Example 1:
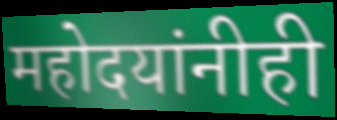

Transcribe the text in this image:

महोदयांनीही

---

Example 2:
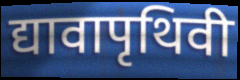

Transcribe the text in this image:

द्यावापृथिवी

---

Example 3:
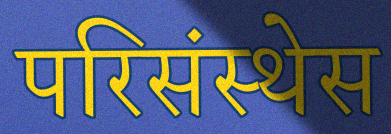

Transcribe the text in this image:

परिसंस्थेस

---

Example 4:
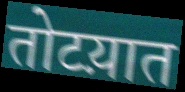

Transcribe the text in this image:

तोटय़ात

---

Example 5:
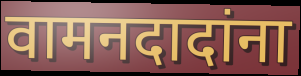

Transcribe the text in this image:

वामनदादांना